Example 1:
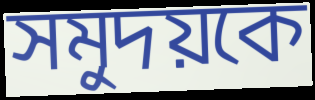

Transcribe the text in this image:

সমুদয়কে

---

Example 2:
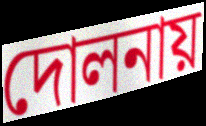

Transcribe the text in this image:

দোলনায়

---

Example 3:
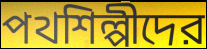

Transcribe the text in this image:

পথশিল্পীদের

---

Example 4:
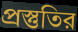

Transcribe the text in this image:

প্রস্তুতির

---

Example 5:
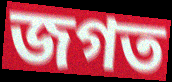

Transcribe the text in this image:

জগত